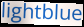
lightblue